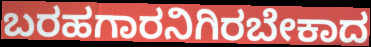
ಬರಹಗಾರನಿಗಿರಬೇಕಾದ